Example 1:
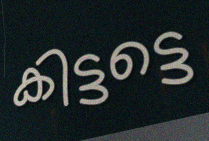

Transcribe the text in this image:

കിട്ടട്ടെ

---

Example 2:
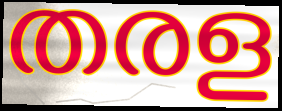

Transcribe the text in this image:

തരള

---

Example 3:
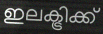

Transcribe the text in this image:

ഇലക്ട്രിക്ക്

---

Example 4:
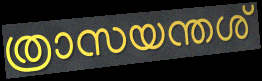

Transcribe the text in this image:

ത്രാസയന്തശ്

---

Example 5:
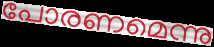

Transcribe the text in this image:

പോരണമെന്നു